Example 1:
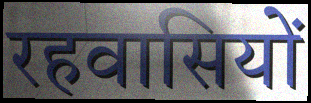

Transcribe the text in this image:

रहवासियों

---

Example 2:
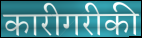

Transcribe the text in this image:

कारीगरीकी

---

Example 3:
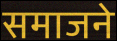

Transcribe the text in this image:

समाजने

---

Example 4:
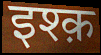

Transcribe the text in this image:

इश्क़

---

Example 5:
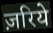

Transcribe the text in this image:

ज़रिये